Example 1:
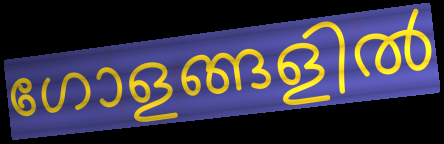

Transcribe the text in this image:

ഗോളങ്ങളിൽ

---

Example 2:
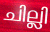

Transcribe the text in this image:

ചില്ലി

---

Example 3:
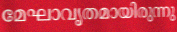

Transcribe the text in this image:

മേഘാവൃതമായിരുന്നു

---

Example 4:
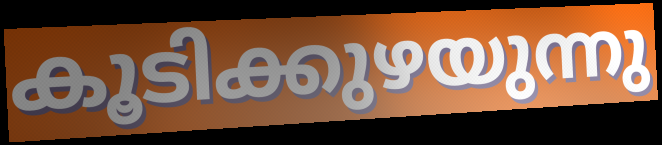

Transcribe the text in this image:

കൂടിക്കുഴയുന്നു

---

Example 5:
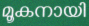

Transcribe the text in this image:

മൂകനായി